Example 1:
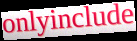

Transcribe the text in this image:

onlyinclude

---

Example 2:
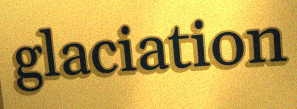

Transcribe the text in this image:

glaciation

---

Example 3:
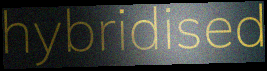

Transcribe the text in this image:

hybridised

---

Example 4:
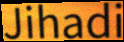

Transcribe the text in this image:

Jihadi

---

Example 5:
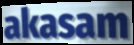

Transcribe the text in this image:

akasam